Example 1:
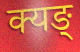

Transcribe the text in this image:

क्यङ्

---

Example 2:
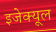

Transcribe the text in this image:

इजेक्यूल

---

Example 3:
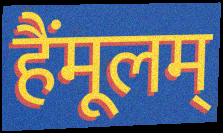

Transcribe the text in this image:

हैंमूलम्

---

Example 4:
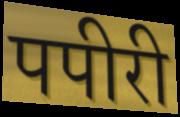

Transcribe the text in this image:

पपीरी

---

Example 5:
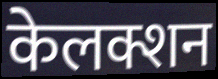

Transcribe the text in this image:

केलक्शन